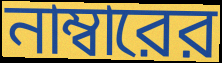
নাম্বারের